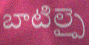
బాటిల్పై